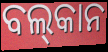
ବଲ୍‌କାନ